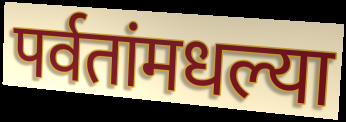
पर्वतांमधल्या